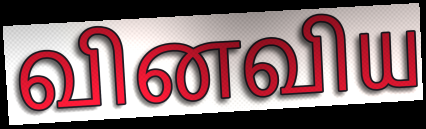
வினவிய